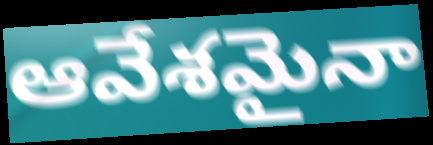
ఆవేశమైనా